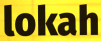
lokah